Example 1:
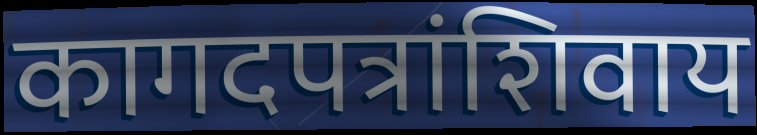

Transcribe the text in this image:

कागदपत्रांशिवाय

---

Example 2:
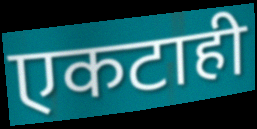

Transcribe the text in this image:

एकटाही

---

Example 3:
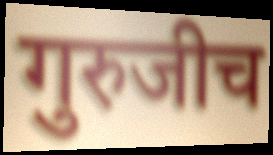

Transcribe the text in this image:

गुरुजीच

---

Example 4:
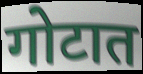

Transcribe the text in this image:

गोटात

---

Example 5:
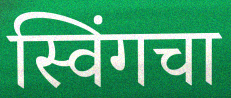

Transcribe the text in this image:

स्विंगचा